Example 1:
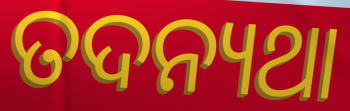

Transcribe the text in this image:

ତଦନ୍ୟଥା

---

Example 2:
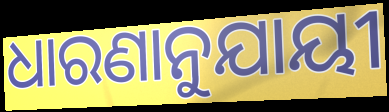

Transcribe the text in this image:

ଧାରଣାନୁଯାୟୀ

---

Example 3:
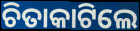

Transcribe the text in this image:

ଚିତାକାଟିଲେ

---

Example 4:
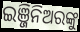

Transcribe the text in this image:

ଇଞ୍ଜିନିଅରଙ୍କୁ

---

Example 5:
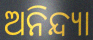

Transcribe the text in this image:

ଅନିନ୍ଦ୍ୟା